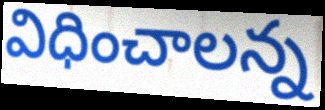
విధించాలన్న